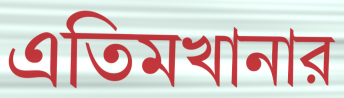
এতিমখানার